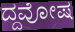
ದ್ದವೋಷ